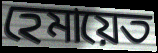
হেমায়েত